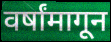
वर्षांमागून